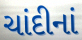
ચાંદીનાં